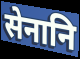
सेनानि